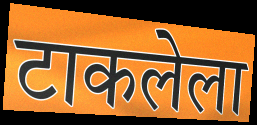
टाकलेला